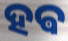
ହଵ